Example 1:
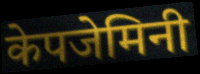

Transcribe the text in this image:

केपजेमिनी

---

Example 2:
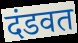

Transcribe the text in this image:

दंडवत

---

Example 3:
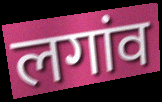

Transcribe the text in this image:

लगांव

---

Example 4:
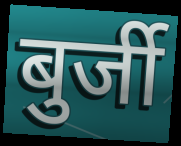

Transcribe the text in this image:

बुर्जी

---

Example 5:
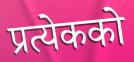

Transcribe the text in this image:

प्रत्येकको